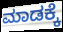
ಮಾಡಕ್ಕೆ